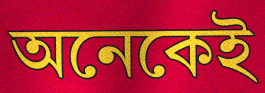
অনেকেই